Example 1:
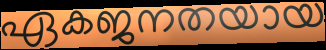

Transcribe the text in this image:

ഏകജനതയായ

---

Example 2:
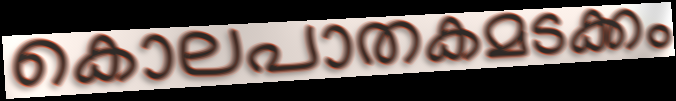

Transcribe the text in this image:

കൊലപാതകമടക്കം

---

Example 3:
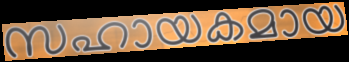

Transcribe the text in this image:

സഹായകമായ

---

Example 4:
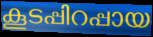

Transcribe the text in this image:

കൂടപ്പിറപ്പായ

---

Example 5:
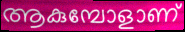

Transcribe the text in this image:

ആകുമ്പോളാണ്